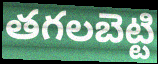
తగలబెట్టి